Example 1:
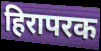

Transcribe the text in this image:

हिरापरक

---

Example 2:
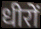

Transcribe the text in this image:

धीरों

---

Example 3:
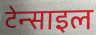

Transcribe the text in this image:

टेन्साइल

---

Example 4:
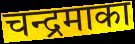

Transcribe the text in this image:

चन्द्रमाका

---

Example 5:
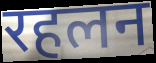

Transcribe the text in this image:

रहलन